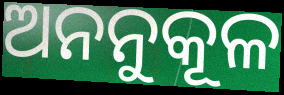
ଅନନୁକୂଳ